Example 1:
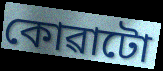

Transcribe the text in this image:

কোৱাটো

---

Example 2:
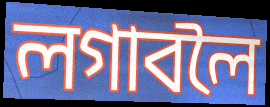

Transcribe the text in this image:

লগাবলৈ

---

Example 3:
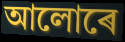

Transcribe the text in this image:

আলোৰে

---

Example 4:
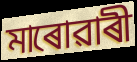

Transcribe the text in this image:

মাৰোৱাৰী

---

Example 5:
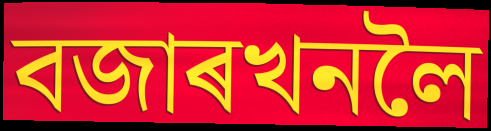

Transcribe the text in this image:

বজাৰখনলৈ